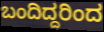
ಬಂದಿದ್ದರಿಂದ